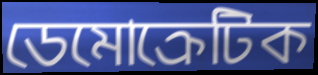
ডেমোক্রেটিক